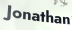
Jonathan